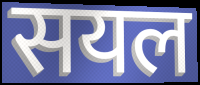
सयल